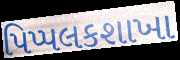
પિપ્પલકશાખા